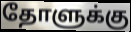
தோளுக்கு